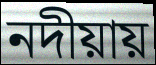
নদীয়ায়